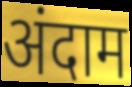
अंदाम